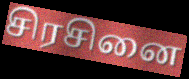
சிரசினை